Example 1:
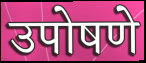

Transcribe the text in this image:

उपोषणे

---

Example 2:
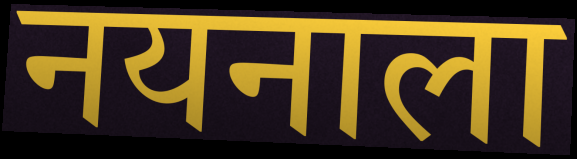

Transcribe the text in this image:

नयनाला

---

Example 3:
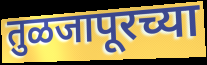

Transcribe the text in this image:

तुळजापूरच्या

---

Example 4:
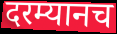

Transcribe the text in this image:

दरम्यानच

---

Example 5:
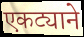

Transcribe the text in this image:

एकट्याने